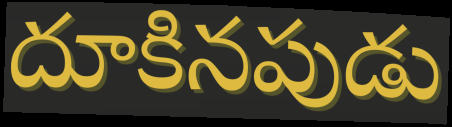
దూకినపుడు